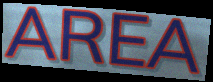
AREA